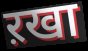
ऱखा